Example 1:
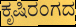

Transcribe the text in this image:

ಕೃಷಿರಂಗದ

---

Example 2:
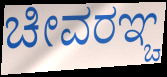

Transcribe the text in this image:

ಚೀವರಞ್ಚ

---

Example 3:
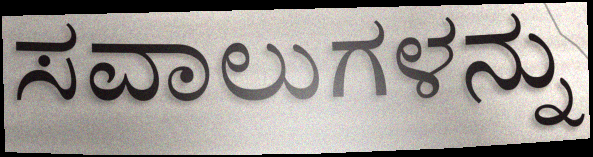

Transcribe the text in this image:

ಸವಾಲುಗಳನ್ನು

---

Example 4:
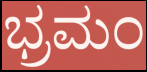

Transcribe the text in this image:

ಭ್ರಮಂ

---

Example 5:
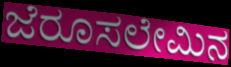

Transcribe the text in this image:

ಜೆರೂಸಲೇಮಿನ